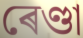
ৰেণ্ডা